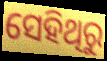
ସେହିଥିରୁ